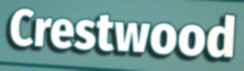
Crestwood